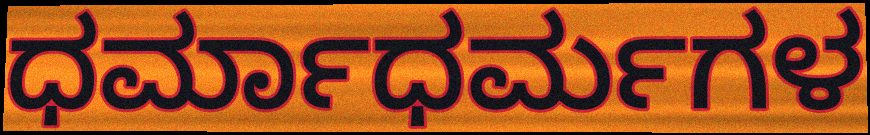
ಧರ್ಮಾಧರ್ಮಗಳ